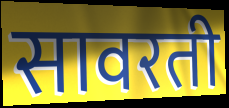
सावरती